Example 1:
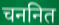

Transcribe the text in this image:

चननित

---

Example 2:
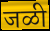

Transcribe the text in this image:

जळी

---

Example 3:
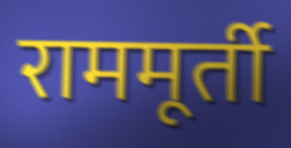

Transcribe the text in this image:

राममूर्ती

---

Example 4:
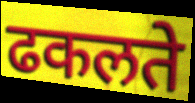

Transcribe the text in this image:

ढकलते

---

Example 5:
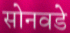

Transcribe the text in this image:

सोनवडे